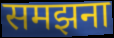
समझना